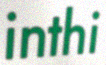
inthi